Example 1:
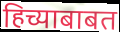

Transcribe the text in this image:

हिच्याबाबत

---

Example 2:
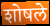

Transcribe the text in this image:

शोषले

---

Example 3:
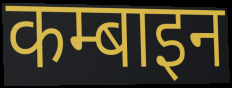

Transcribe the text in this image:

कम्बाइन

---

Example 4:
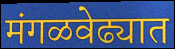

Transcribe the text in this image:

मंगळवेढ्यात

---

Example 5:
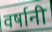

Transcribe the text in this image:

वर्षानी